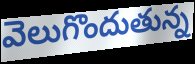
వెలుగొందుతున్న